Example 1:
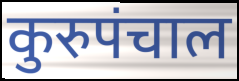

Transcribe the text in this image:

कुरुपंचाल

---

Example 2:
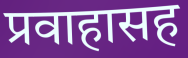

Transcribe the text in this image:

प्रवाहासह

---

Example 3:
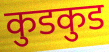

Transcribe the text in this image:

कुडकुड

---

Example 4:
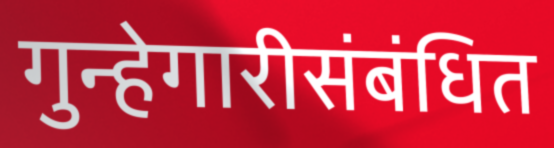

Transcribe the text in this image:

गुन्हेगारीसंबंधित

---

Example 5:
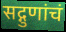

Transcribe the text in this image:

सद्गुणांचं